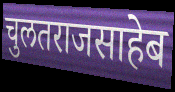
चुलतराजसाहेब